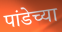
पांडेच्या